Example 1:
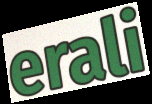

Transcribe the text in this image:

erali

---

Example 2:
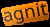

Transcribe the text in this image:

agnit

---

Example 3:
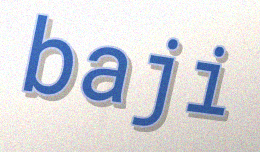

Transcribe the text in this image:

baji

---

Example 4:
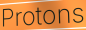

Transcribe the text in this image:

Protons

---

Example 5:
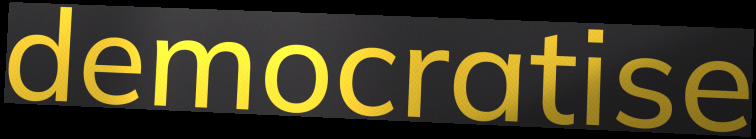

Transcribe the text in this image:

democratise